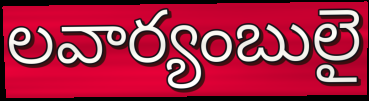
లవార్యంబులై